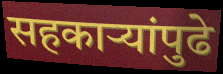
सहकाऱ्यांपुढे